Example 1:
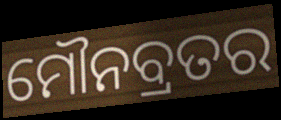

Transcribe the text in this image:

ମୌନବ୍ରତର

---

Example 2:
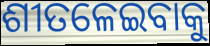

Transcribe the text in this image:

ଶୀତଳେଇବାକୁ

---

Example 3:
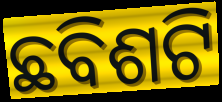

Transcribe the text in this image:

ଛବିଶଟି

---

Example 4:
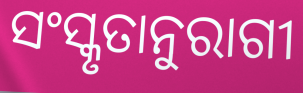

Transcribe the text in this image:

ସଂସ୍କୃତାନୁରାଗୀ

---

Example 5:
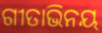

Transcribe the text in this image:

ଗୀତାଭିନୟ